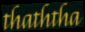
thaththa